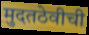
मुदतठेवीची